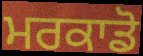
ਮਰਕਾਡੋ